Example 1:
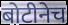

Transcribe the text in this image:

बोटीनेच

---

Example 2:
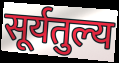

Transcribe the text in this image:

सूर्यतुल्य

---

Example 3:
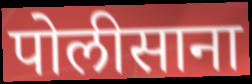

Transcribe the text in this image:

पोलीसाना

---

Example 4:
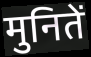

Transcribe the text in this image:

मुनितें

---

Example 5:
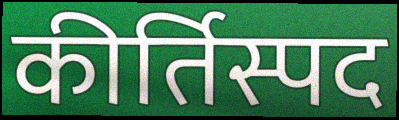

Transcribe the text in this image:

कीर्तिस्पद